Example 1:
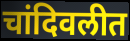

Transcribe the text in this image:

चांदिवलीत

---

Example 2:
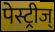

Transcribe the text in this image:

पेस्ट्रीज्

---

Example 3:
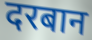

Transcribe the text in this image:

दरबान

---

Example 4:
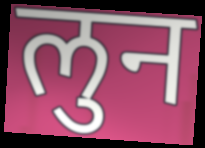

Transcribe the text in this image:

लुन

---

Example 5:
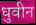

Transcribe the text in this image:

धुवीन